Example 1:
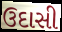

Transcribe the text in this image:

ઉદાસી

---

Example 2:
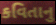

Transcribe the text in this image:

કવિતાનુ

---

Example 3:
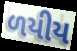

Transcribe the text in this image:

ળયીય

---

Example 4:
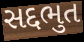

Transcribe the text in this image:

સદ્દભુત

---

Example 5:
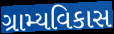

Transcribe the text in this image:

ગ્રામ્યવિકાસ